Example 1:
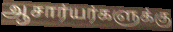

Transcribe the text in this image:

ஆசார்யர்களுக்கு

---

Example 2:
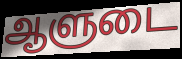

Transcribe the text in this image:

ஆளுடை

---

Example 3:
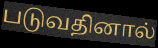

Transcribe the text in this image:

படுவதினால்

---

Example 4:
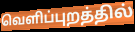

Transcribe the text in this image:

வெளிப்புறத்தில்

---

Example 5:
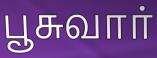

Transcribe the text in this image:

பூசுவார்